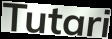
Tutari